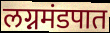
लग्नमंडपात